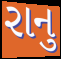
રાનુ